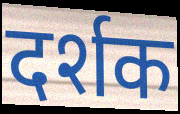
दर्शक